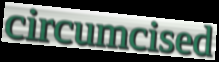
circumcised